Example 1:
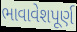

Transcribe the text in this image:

ભાવાવેશપૂર્ણ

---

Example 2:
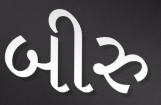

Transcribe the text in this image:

બીરુ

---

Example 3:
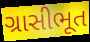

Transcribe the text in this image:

ગ્રાસીભૂત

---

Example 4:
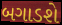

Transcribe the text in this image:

બગાડશે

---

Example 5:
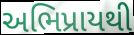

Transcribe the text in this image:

અભિપ્રાયથી